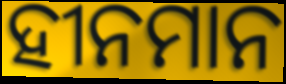
ହୀନମାନ